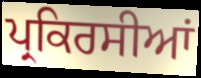
ਪ੍ਰਕਿਰਸੀਆਂ